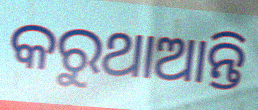
କରୁଥାଆନ୍ତି